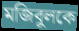
মজিবুলকে